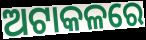
ଅଟାକଳରେ